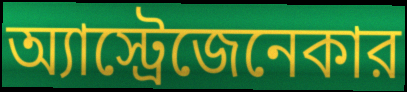
অ্যাস্ট্রেজেনেকার